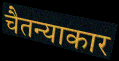
चैतन्याकार